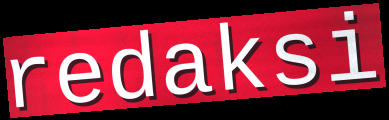
redaksi